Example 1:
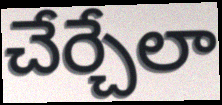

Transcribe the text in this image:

చేర్చేలా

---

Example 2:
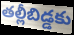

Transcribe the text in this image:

తల్లీబిడ్డకు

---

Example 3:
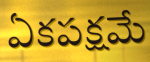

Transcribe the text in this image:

ఏకపక్షమే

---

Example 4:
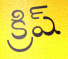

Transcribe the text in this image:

క్రిష్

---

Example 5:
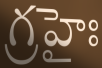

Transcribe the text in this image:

గ్రహైః